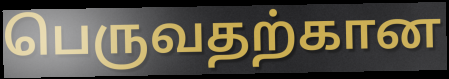
பெருவதற்கான